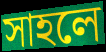
সাহলে